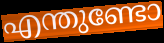
എന്തുണ്ടോ